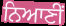
ਨਿਆਣੀਂ